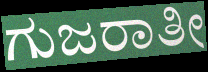
ಗುಜರಾತೀ